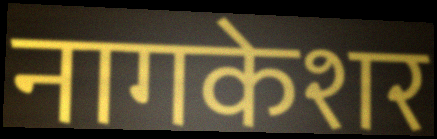
नागकेशर